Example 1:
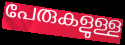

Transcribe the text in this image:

പേരുകളുള്ള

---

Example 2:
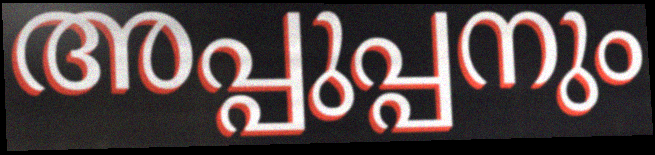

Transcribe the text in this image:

അപ്പുപ്പനും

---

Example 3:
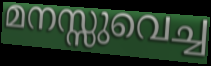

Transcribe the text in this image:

മനസ്സുവെച്ച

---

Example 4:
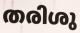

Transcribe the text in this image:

തരിശു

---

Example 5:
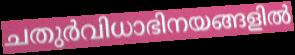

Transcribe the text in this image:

ചതുർവിധാഭിനയങ്ങളിൽ